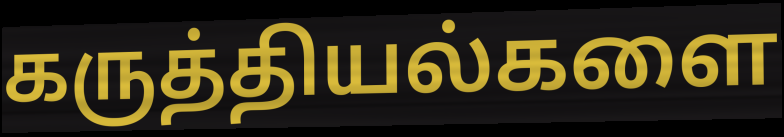
கருத்தியல்களை